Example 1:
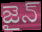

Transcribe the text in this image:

జైన్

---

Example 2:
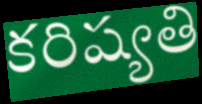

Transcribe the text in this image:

కరిష్యతి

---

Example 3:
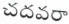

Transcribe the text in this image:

చదవరా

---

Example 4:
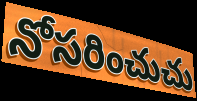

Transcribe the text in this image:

నోసరించుచు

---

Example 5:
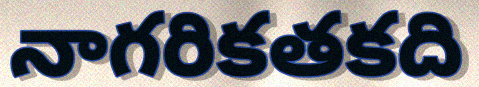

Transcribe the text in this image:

నాగరికతకది